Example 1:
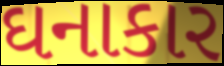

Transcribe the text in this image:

ઘનાકાર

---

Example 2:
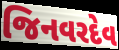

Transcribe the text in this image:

જિનવરદેવ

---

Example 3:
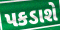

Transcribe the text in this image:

પકડાશે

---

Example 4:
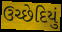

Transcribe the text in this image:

ઉચ્છેદિયું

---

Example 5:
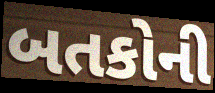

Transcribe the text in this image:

બતકોની